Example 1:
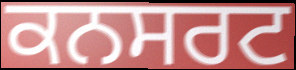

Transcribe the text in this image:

ਕਨਸਰਟ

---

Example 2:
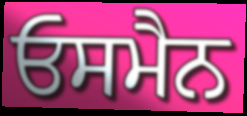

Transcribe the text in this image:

ਓਸਮੈਨ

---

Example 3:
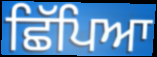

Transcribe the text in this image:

ਛਿੱਪਿਆ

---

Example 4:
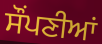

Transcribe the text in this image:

ਸੌਂਪਣੀਆਂ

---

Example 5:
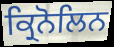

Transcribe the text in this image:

ਕ੍ਰਿਨੋਲਿਨ